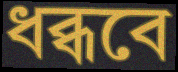
ধব্ধবে